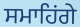
ਸਮਾਹਿਂਗੇ